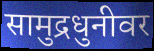
सामुद्रधुनीवर